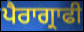
ਪੈਰਾਗ੍ਰਾਫੀ